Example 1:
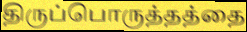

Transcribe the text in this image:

திருப்பொருத்தத்தை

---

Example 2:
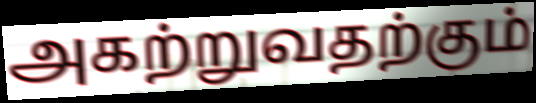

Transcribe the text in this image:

அகற்றுவதற்கும்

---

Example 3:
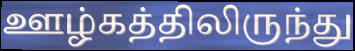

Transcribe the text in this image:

ஊழ்கத்திலிருந்து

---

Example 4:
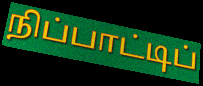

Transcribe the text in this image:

நிப்பாட்டிப்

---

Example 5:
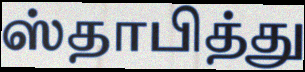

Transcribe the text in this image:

ஸ்தாபித்து